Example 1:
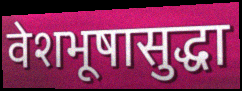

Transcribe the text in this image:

वेशभूषासुद्धा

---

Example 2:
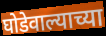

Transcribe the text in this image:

घोडेवाल्याच्या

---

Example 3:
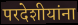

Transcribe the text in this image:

परदेशीयांना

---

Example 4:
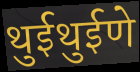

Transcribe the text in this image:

थुईथुईणे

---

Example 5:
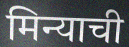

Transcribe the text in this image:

मिन्याची